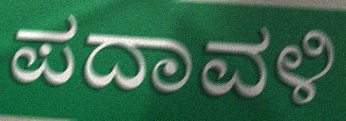
ಪದಾವಳಿ